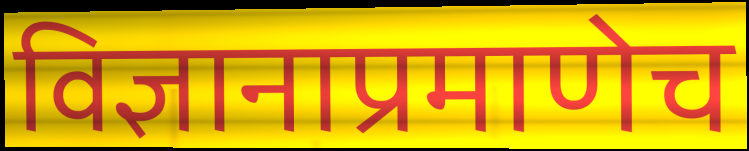
विज्ञानाप्रमाणेच